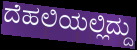
ದೆಹಲಿಯಲ್ಲಿದ್ದು